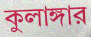
কুলাঙ্গার